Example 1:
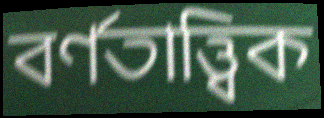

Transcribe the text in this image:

বৰ্ণতাত্ত্বিক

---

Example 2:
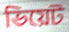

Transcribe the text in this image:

ভিয়েট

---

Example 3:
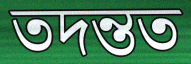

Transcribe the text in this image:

তদন্তত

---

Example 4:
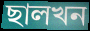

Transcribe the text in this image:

ছালখন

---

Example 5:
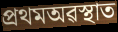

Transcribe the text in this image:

প্ৰথমঅৱস্থাত